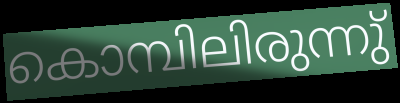
കൊമ്പിലിരുന്നു്